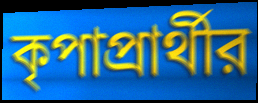
কৃপাপ্রার্থীর